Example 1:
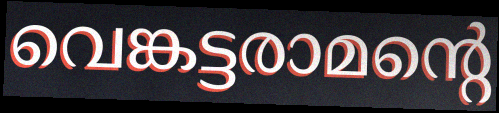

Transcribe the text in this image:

വെങ്കട്ടരാമന്റെ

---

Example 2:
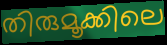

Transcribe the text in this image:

തിരുമൂക്കിലെ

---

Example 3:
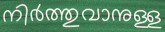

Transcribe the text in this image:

നിർത്തുവാനുള്ള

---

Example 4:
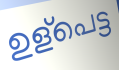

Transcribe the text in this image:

ഉള്പെട്ട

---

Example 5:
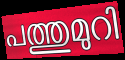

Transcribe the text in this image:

പത്തുമുറി